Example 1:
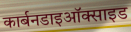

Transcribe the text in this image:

कार्बनडाइऑक्साइड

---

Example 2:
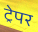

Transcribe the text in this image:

ट्रेपर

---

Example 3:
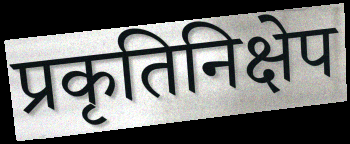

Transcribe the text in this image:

प्रकृतिनिक्षेप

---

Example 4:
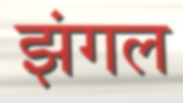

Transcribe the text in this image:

झंगल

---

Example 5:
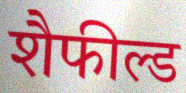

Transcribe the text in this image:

शैफील्ड